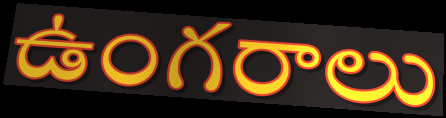
ఉంగరాలు